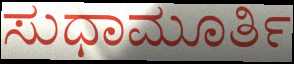
ಸುಧಾಮೂರ್ತಿ